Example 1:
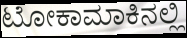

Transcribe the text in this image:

ಟೋಕಾಮಾಕಿನಲ್ಲಿ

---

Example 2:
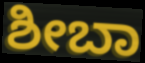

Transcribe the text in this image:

ಶೀಬಾ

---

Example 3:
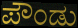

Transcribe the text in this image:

ಪೌಂಡು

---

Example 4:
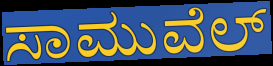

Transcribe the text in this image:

ಸಾಮುವೆಲ್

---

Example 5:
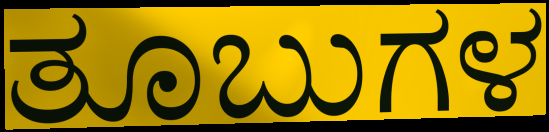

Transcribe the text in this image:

ತೂಬುಗಳ